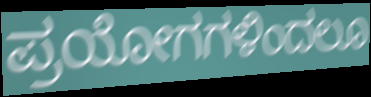
ಪ್ರಯೋಗಗಳಿಂದಲೂ